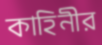
কাহিনীর